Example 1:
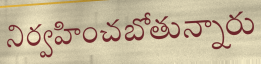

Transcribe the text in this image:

నిర్వహించబోతున్నారు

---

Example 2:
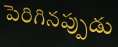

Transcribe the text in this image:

పెరిగినప్పుడు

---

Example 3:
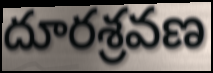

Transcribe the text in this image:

దూరశ్రవణ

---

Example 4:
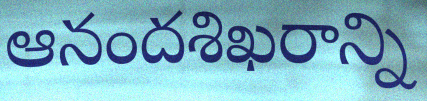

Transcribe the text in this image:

ఆనందశిఖరాన్ని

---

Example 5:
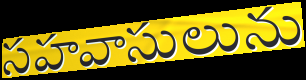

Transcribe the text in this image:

సహవాసులును